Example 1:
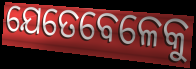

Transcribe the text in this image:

ଯେତେବେଳେକୁ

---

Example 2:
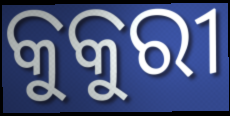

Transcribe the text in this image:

କୁକୁରୀ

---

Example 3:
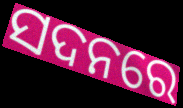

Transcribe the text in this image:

ସଦନରେ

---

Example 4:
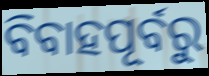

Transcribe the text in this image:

ବିବାହପୂର୍ବରୁ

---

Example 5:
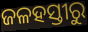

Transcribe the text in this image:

ଜଳହସ୍ତୀରୁ